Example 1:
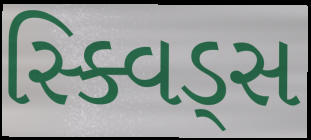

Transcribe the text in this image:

સ્ક્વિડ્સ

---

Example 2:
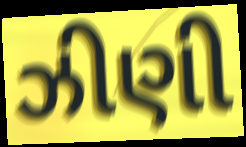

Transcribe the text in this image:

ઝીણી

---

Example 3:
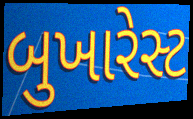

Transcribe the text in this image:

બુખારેસ્ટ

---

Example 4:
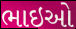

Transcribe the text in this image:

ભાઇઓ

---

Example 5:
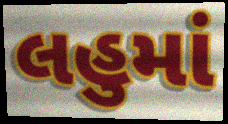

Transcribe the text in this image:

લહુમાં